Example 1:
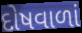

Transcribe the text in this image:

દોષવાળાં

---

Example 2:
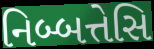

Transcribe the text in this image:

નિબ્બત્તેસિ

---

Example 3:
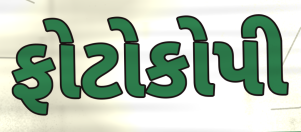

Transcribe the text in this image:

ફોટોકોપી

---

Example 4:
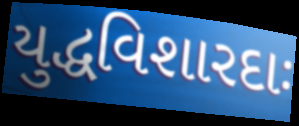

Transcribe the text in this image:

યુદ્ધવિશારદાઃ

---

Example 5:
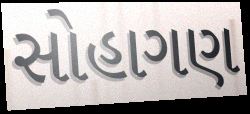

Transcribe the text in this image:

સોહાગણ